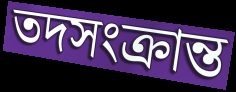
তদসংক্রান্ত